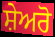
ਸ਼ੇਅਰੋ